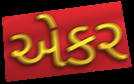
એકર